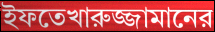
ইফতেখারুজ্জামানের